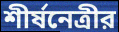
শীর্ষনেত্রীর